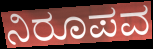
ನಿರೂಪವ